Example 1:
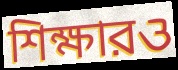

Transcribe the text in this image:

শিক্ষারও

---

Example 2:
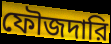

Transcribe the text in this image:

ফৌজদারি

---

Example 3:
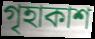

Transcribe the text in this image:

গৃহাকাশ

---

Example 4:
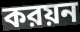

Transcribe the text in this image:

করয়ন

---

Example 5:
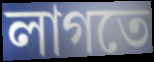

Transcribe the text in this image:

লাগতে